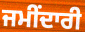
ਜਮੀਂਦਾਰੀ